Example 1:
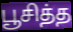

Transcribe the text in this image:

பூசித்த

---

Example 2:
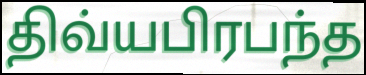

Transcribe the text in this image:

திவ்யபிரபந்த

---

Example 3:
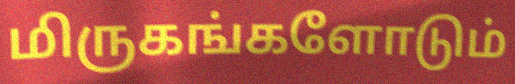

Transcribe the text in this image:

மிருகங்களோடும்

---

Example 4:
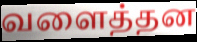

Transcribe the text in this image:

வளைத்தன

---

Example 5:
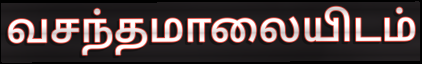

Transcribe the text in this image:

வசந்தமாலையிடம்